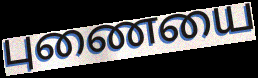
புணையை